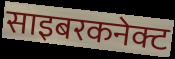
साइबरकनेक्ट